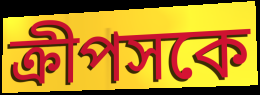
ক্রীপসকে